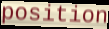
position